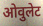
ओवुलेट